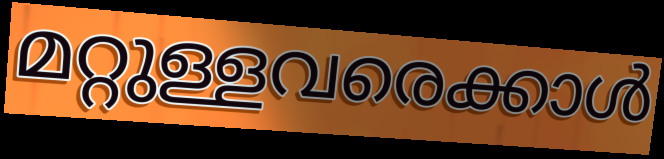
മറ്റുള്ളവരെക്കാൾ